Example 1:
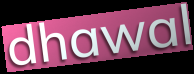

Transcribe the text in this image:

dhawal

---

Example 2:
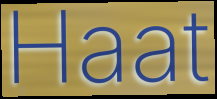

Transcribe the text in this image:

Haat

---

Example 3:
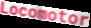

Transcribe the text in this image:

Locomotor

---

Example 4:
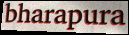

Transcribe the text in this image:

bharapura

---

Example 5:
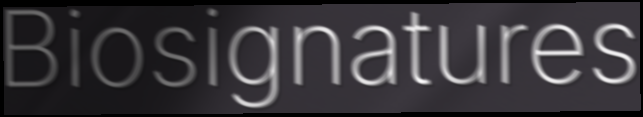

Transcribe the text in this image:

Biosignatures